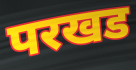
परखड